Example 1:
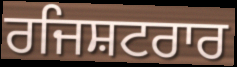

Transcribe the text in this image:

ਰਜਿਸ਼ਟਰਾਰ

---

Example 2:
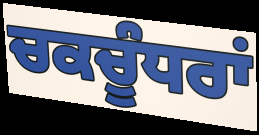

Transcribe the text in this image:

ਚਕਚੂੰਧਰਾਂ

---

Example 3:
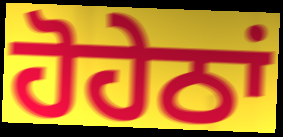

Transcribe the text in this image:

ਹੋਹੇਠਾਂ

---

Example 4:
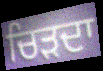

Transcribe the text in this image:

ਚਿੜਦਾ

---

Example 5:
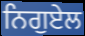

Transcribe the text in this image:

ਨਿਗੁਏਲ